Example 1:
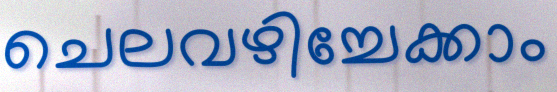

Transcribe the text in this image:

ചെലവഴിച്ചേക്കാം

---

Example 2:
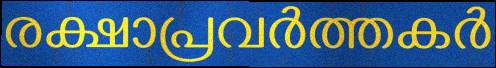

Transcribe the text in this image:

രക്ഷാപ്രവർത്തകർ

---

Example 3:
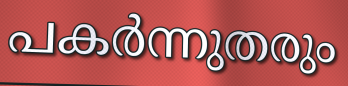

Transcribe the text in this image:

പകർന്നുതരും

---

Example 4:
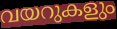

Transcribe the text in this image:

വയറുകളും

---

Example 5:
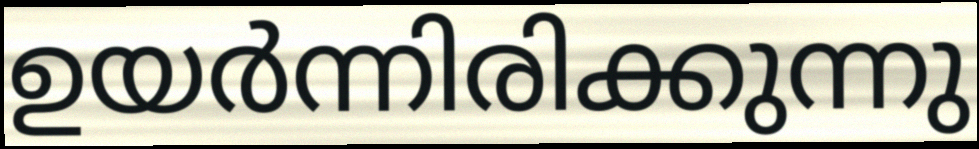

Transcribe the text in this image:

ഉയർന്നിരിക്കുന്നു